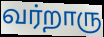
வர்றாரு